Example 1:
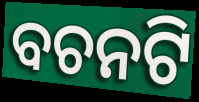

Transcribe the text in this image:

ବଚନଟି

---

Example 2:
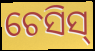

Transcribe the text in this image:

ଚେସିସ୍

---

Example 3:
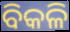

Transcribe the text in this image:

ବିକଳି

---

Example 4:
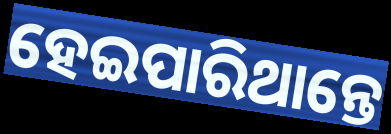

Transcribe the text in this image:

ହେଇପାରିଥାନ୍ତେ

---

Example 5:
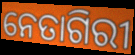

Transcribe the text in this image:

ନେତାଗିରୀ